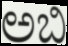
ಅಬಿ